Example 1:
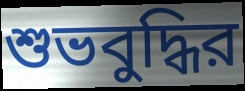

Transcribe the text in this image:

শুভবুদ্ধির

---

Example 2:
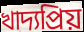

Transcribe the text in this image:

খাদ্যপ্রিয়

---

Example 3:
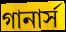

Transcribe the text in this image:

গানার্স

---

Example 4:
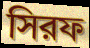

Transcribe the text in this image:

সিরফ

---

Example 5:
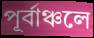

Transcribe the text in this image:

পূর্বাঞ্চলে